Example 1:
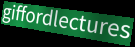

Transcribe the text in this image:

giffordlectures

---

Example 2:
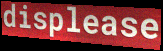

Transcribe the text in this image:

displease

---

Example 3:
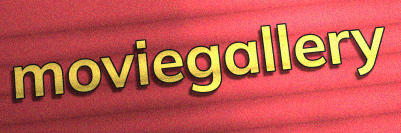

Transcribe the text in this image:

moviegallery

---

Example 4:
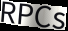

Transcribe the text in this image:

RPCs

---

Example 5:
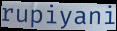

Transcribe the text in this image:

rupiyani